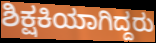
ಶಿಕ್ಷಕಿಯಾಗಿದ್ದರು